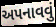
અપનાવવું